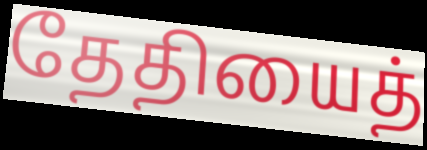
தேதியைத்